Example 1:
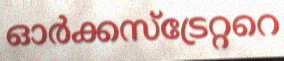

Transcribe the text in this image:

ഓർക്കസ്ട്രേറ്ററെ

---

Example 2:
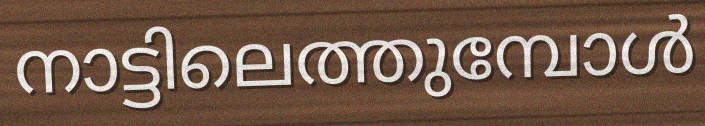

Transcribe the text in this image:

നാട്ടിലെത്തുമ്പോൾ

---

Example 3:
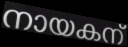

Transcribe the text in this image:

നായകന്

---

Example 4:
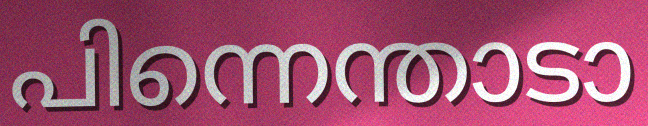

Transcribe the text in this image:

പിന്നെന്താടാ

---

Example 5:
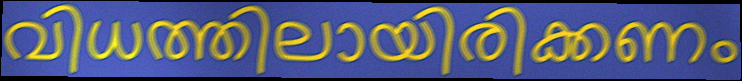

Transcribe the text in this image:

വിധത്തിലായിരിക്കണം